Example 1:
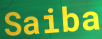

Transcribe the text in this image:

Saiba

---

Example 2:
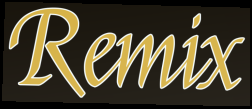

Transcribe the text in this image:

Remix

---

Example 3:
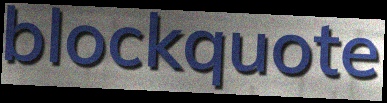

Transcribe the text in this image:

blockquote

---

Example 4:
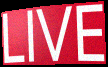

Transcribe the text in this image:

LIVE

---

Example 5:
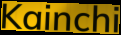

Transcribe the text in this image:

Kainchi